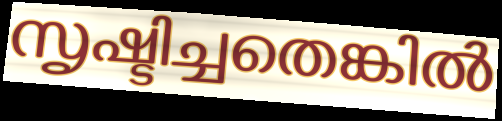
സൃഷ്ടിച്ചതെങ്കിൽ